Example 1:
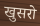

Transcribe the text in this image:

खुसरो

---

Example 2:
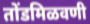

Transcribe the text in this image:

तोंडमिळवणी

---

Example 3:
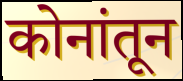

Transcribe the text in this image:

कोनांतून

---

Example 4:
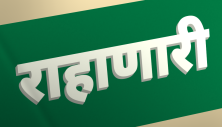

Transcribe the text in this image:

राहाणारी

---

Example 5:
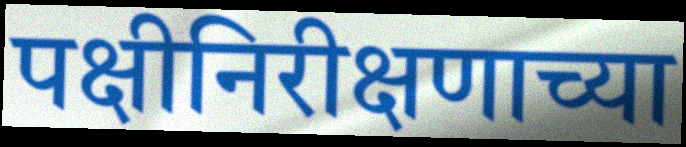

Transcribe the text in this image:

पक्षीनिरीक्षणाच्या